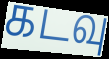
கடவு